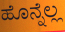
ಹೊನ್ನೆಲ್ಲ